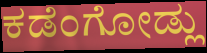
ಕಡೆಂಗೋಡ್ಲು